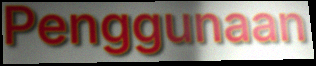
Penggunaan